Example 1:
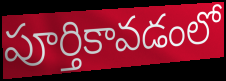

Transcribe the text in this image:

పూర్తికావడంలో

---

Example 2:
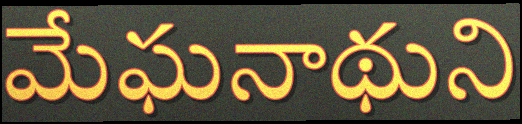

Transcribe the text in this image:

మేఘనాథుని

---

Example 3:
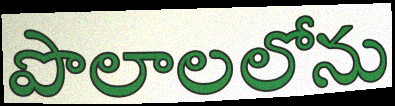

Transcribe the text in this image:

పొలాలలోను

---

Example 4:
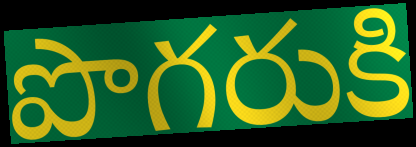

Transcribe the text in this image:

పొగరుకి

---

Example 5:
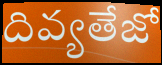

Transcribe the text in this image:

దివ్యతేజో